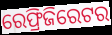
ରେଫ୍ରିଜିରେଟର